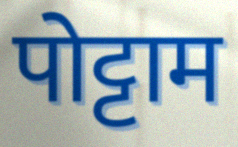
पोट्टाम